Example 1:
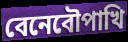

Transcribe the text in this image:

বেনেবৌপাখি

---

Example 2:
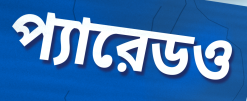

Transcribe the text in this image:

প্যারেডও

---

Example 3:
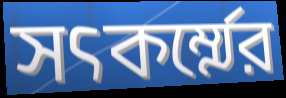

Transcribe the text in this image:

সৎকর্ম্মের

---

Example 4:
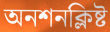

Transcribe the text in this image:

অনশনক্লিষ্ট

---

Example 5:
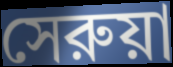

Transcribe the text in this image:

সেরুয়া